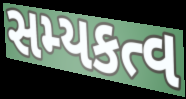
સમ્યકત્વ